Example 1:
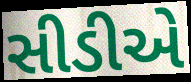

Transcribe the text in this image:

સીડીએ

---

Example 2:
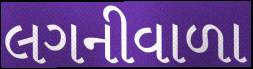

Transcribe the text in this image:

લગનીવાળા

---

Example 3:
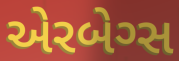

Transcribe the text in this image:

એરબેગ્સ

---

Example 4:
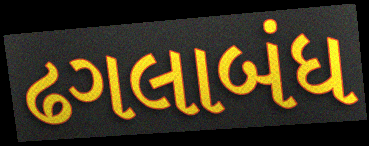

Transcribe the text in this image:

ઢગલાબંધ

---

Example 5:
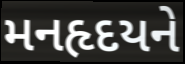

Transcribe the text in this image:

મનહૃદયને